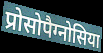
प्रोसोपैग्नोसिया